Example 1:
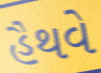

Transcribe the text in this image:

હૈથવે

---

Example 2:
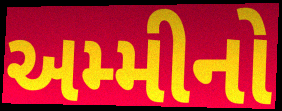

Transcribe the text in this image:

અમ્મીનો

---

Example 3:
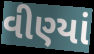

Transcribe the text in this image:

વીણ્યાં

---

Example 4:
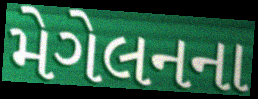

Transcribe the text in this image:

મેગેલનના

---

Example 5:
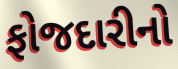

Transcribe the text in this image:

ફોજદારીનો